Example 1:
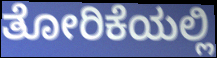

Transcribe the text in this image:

ತೋರಿಕೆಯಲ್ಲಿ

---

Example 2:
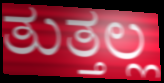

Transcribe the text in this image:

ತುತ್ತಲ್ಲ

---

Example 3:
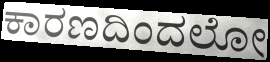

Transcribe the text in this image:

ಕಾರಣದಿಂದಲೋ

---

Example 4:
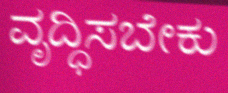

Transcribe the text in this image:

ವೃದ್ಧಿಸಬೇಕು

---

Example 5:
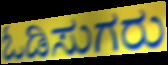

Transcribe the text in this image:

ಓಡಿಸುಗರು